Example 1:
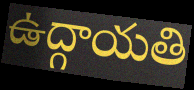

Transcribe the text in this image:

ఉద్గాయతి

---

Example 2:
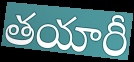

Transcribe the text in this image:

తయారీ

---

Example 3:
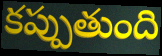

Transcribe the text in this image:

కప్పుతుంది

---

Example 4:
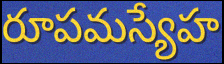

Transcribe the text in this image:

రూపమస్యేహ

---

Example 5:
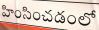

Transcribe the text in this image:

హింసించడంలో